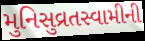
મુનિસુવ્રતસ્વામીની